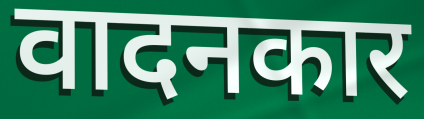
वादनकार